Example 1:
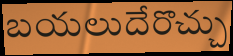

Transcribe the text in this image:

బయలుదేరొచ్చు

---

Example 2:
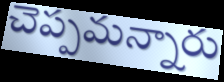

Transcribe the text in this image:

చెప్పమన్నారు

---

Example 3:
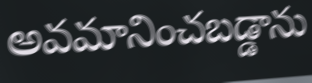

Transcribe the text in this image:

అవమానించబడ్డాను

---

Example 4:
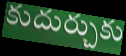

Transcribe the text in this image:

కుదుర్చుకు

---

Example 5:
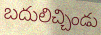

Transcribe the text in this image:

బదులిచ్చిండు